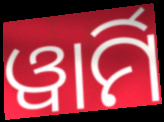
ୱାର୍ମି